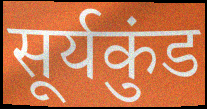
सूर्यकुंड